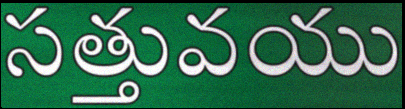
సత్తువయు